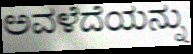
ಅವಳೆದೆಯನ್ನು